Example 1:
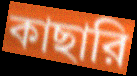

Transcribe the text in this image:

কাছারি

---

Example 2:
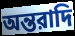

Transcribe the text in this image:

অন্তরাদি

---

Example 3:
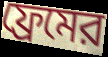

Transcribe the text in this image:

ফ্রেমের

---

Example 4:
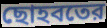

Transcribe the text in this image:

ছোহবতের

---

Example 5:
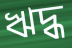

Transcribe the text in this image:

ঋদ্ধ